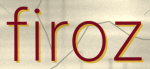
firoz